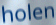
holen